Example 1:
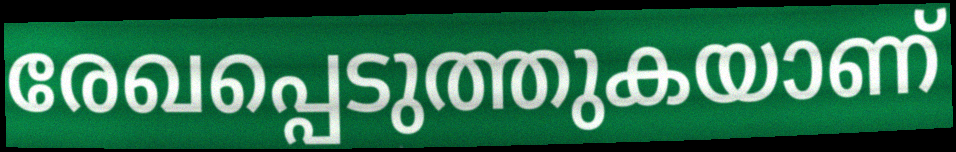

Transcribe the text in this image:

രേഖപ്പെടുത്തുകയാണ്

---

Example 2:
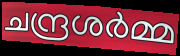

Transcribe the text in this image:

ചന്ദ്രശർമ്മ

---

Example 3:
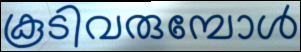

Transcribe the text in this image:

കൂടിവരുമ്പോൾ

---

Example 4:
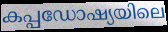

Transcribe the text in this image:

കപ്പഡോഷ്യയിലെ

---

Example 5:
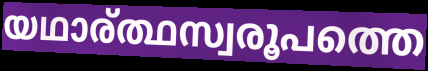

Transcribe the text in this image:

യഥാര്ത്ഥസ്വരൂപത്തെ